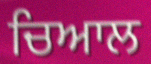
ਚਿਆਲ